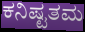
ಕನಿಷ್ಟತಮ